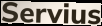
Servius